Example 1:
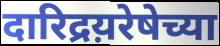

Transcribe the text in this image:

दारिद्रय़रेषेच्या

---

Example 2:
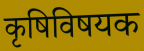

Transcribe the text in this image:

कृषिविषयक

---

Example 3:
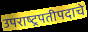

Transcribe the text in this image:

उपराष्ट्रपतीपदाचे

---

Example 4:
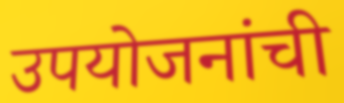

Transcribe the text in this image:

उपयोजनांची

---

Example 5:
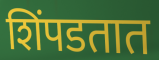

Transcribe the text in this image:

शिंपडतात